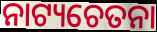
ନାଟ୍ୟଚେତନା